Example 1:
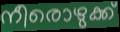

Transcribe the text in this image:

നീരൊഴുക്ക്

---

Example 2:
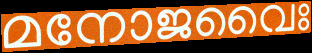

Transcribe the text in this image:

മനോജവൈഃ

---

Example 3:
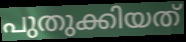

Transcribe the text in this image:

പുതുക്കിയത്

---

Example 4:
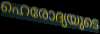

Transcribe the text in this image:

ഹെരോദ്യയുടെ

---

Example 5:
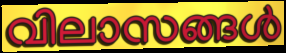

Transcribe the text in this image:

വിലാസങ്ങൾ